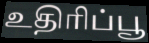
உதிரிப்பூ